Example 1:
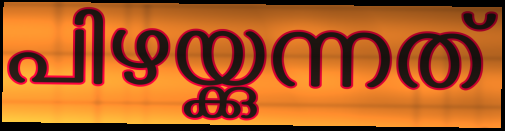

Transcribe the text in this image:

പിഴയ്ക്കുന്നത്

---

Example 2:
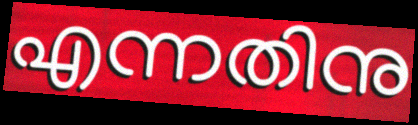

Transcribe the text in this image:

എന്നതിനു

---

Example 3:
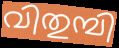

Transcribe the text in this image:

വിതുമ്പി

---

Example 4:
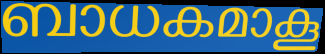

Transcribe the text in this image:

ബാധകമാകൂ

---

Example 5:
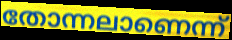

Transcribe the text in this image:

തോന്നലാണെന്ന്